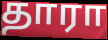
தாரா